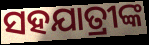
ସହଯାତ୍ରୀଙ୍କ